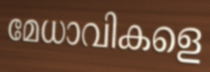
മേധാവികളെ